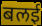
बलई